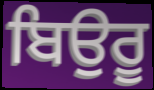
ਬਿਉਰੂ